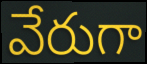
వేరుగా